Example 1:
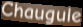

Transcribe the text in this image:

Chaugule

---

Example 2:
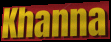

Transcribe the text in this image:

Khanna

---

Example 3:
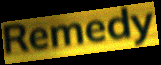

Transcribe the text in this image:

Remedy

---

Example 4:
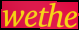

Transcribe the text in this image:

wethe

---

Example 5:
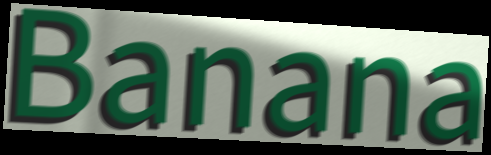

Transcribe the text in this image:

Banana